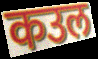
कउल